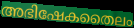
അഭിഷേകതൈലം